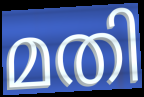
മതി